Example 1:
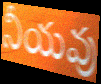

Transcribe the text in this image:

నీయవు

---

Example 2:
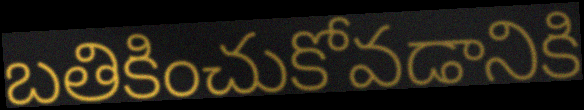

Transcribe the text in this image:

బతికించుకోవడానికి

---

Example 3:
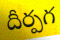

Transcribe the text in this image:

దీర్పగ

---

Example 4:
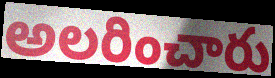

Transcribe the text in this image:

అలరించారు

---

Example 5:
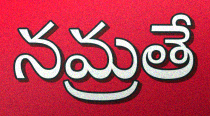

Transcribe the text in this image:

నమ్రతే